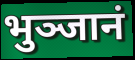
भुञ्जानं